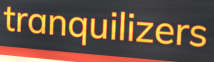
tranquilizers